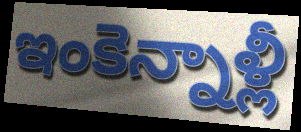
ఇంకెన్నాళ్లీ